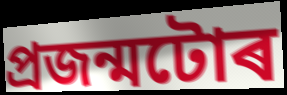
প্ৰজন্মটোৰ